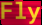
Fly